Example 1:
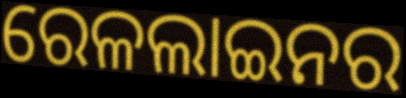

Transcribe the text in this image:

ରେଳଲାଇନର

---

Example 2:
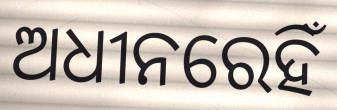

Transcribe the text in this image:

ଅଧୀନରେହିଁ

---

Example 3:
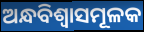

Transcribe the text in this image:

ଅନ୍ଧବିଶ୍ୱାସମୂଳକ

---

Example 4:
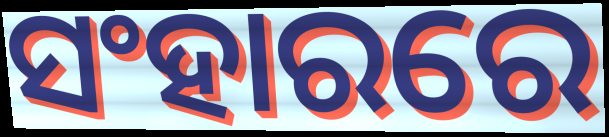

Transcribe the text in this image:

ସଂହାରରେ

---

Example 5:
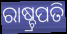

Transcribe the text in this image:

ରାଷ୍ଚ୍ରପତି